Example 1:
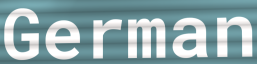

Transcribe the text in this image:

German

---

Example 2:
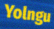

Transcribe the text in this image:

Yolngu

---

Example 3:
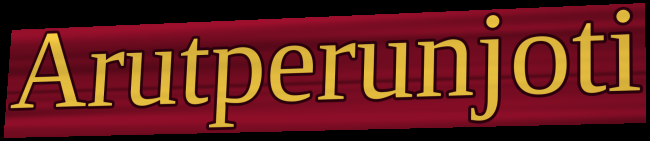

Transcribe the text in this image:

Arutperunjoti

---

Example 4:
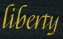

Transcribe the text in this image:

liberty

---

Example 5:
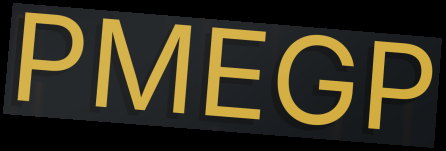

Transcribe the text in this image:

PMEGP